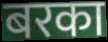
बरका